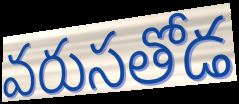
వరుసతోడ